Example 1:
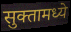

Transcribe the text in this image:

सुक्तामध्ये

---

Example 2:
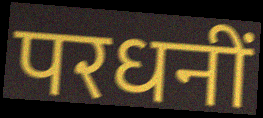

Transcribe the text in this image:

परधनीं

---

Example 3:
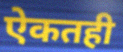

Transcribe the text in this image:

ऐकतही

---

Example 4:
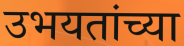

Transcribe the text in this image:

उभयतांच्या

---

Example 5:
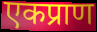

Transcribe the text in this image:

एकप्राण